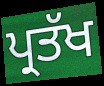
ਪ੍ਰਤੱਖ